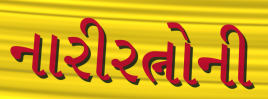
નારીરત્નોની